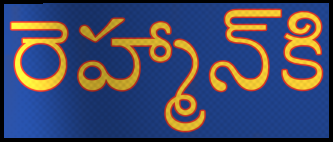
రెహ్మాన్‌కి